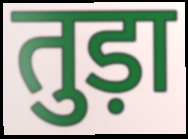
तुड़ा